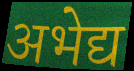
अभेद्य